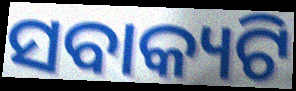
ସବାକ୍ୟଟି